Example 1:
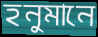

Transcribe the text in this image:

হনুমানে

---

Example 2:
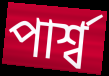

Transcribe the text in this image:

পার্শ্ব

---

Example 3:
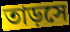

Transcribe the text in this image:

তাড়সে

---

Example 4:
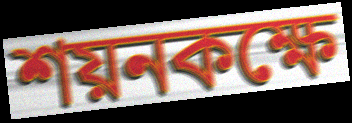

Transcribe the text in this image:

শয়নকক্ষে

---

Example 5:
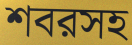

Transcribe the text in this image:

শবরসহ